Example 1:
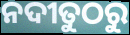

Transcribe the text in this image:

ନଦୀତୁଠରୁ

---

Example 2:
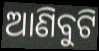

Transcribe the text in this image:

ଆଣିବୁଟି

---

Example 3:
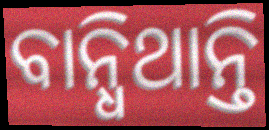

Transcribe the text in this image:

ବାନ୍ଧିଥାନ୍ତି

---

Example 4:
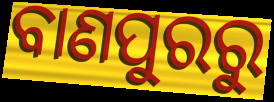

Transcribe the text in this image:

ବାଣପୁରରୁ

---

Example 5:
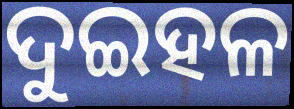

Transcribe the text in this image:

ଦୁଇହଳ